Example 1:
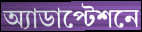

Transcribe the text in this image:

অ্যাডাপ্টেশনে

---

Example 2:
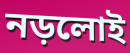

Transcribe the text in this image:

নড়লোই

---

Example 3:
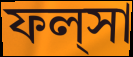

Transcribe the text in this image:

ফল্‌সা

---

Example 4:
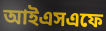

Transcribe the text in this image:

আইএসএফে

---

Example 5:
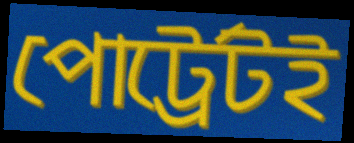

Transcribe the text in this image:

পোর্ট্রেটই